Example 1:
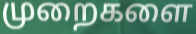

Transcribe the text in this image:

முறைகளை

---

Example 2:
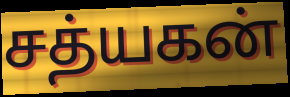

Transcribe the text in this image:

சத்யகன்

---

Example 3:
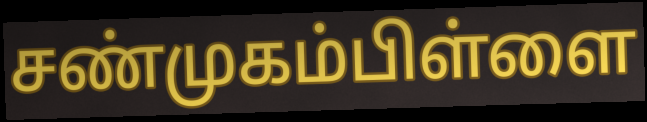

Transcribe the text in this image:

சண்முகம்பிள்ளை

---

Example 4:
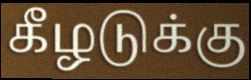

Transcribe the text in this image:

கீழடுக்கு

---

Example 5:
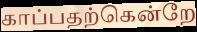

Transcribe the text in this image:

காப்பதற்கென்றே